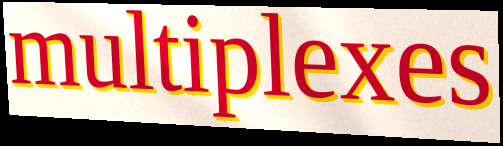
multiplexes